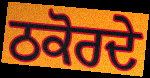
ਠਕੋਰਦੇ